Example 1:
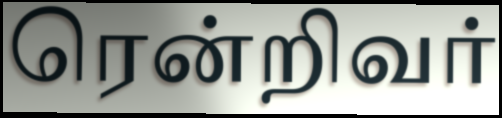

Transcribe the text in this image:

ரென்றிவர்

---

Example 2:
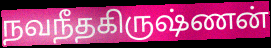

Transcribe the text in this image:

நவநீதகிருஷ்ணன்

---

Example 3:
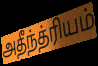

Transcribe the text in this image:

அதீந்த்ரியம்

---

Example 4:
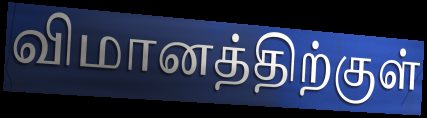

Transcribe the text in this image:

விமானத்திற்குள்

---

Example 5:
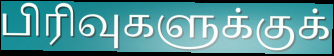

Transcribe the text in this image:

பிரிவுகளுக்குக்